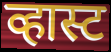
व्हास्ट